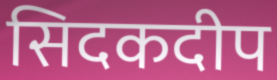
सिदकदीप